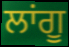
ਲਾਂਗੂ